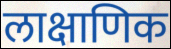
लाक्षाणिक